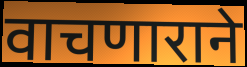
वाचणाराने